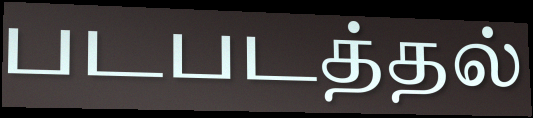
படபடத்தல்